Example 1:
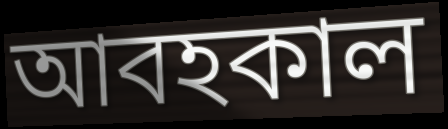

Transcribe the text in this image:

আবহকাল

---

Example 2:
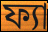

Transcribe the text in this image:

ফ্যা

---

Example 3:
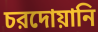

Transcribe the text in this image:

চরদোয়ানি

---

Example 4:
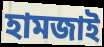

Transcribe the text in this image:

হামজাই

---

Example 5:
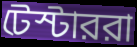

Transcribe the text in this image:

টেস্টাররা